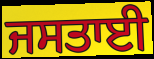
ਜਸਤਾਈ